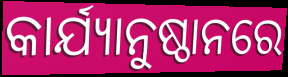
କାର୍ଯ୍ୟାନୁଷ୍ଠାନରେ